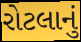
રોટલાનું